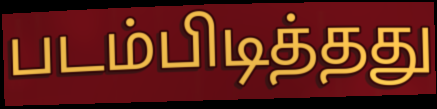
படம்பிடித்தது